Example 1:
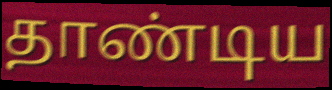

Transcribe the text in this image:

தாண்டிய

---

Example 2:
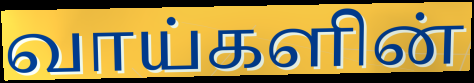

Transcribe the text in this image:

வாய்களின்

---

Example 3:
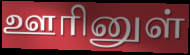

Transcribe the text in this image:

ஊரினுள்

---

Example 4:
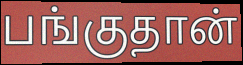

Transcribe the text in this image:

பங்குதான்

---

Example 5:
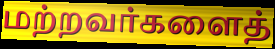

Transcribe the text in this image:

மற்றவர்களைத்